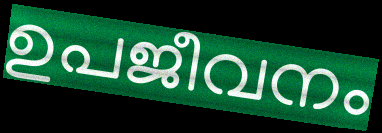
ഉപജീവനം